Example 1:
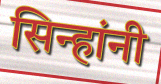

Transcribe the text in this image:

सिन्हांनी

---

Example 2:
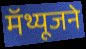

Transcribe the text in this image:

मॅथ्यूजने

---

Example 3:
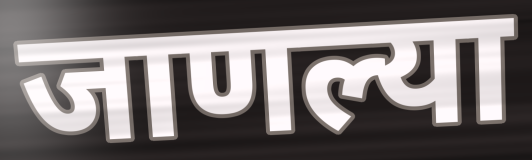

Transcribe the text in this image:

जाणल्या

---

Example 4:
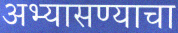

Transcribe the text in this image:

अभ्यासण्याचा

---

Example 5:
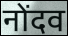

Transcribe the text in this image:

नोंदव